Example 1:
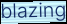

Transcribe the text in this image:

blazing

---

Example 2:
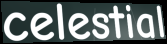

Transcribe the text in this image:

celestial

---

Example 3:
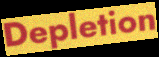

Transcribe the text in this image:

Depletion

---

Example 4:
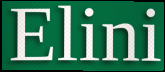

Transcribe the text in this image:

Elini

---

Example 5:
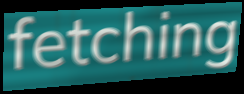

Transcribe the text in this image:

fetching